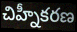
చిహ్నీకరణ